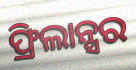
ଫ୍ରିଲାନ୍ସର